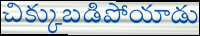
చిక్కుబడిపోయాడు